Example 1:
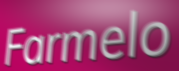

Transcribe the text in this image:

Farmelo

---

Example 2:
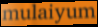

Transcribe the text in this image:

mulaiyum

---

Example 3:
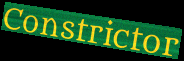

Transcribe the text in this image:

Constrictor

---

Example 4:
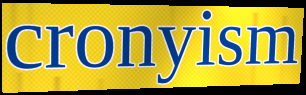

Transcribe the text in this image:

cronyism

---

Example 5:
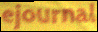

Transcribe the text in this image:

ejournal